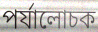
পর্যালোচক